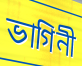
ভাগিনী